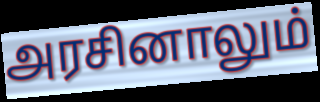
அரசினாலும்